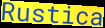
Rustica